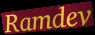
Ramdev